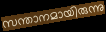
സന്താനമായിരുന്നു